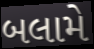
બલામે